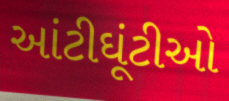
આંટીઘૂંટીઓ